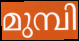
മുമ്പി